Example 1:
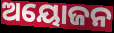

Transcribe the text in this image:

ଅୟୋଜନ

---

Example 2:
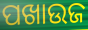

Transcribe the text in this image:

ପଖାଉଜ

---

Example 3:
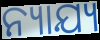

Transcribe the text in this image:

ନ୍ୟାଯ୍ୟ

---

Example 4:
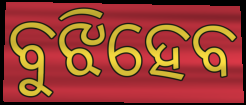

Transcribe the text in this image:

ବୁଝିହେବ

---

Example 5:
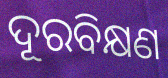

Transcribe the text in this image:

ଦୂରବିକ୍ଷଣ